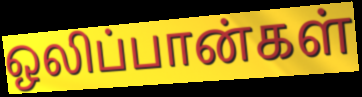
ஒலிப்பான்கள்